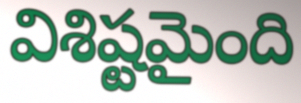
విశిష్టమైంది